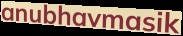
anubhavmasik